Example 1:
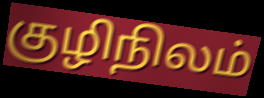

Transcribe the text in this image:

குழிநிலம்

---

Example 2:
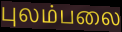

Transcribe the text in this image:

புலம்பலை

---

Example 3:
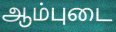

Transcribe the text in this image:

ஆம்புடை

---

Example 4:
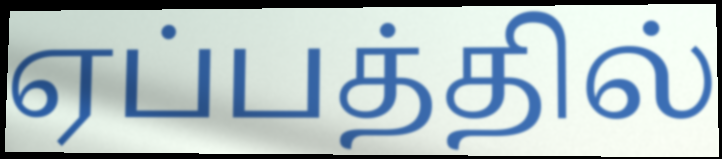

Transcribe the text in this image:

ஏப்பத்தில்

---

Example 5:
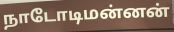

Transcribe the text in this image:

நாடோடிமன்னன்